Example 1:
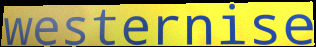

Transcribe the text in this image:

westernise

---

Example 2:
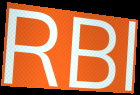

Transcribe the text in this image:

RBl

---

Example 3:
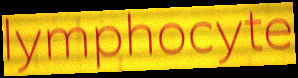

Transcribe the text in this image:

lymphocyte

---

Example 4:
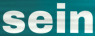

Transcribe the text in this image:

sein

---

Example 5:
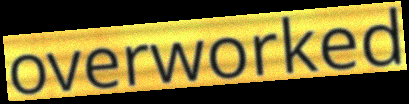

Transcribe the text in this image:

overworked